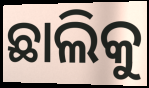
ଛାଲିକୁ